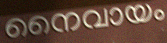
നൈവായം